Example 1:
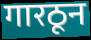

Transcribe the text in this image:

गारठून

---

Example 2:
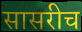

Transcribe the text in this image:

सासरीच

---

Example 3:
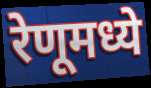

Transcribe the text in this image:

रेणूमध्ये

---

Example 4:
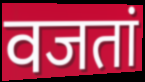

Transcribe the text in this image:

वजतां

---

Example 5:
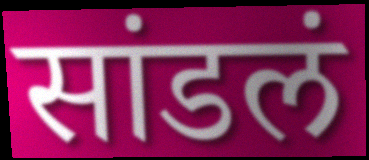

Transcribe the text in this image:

सांडलं